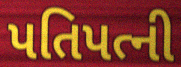
પતિપત્ની